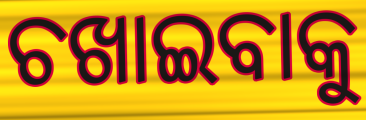
ଚଖାଇବାକୁ